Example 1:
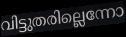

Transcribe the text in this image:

വിട്ടുതരില്ലെന്നോ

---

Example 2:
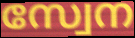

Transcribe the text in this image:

സ്വേന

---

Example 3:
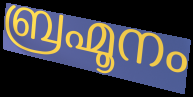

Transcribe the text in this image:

ബ്രഹ്മൂനം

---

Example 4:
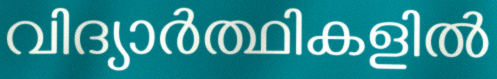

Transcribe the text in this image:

വിദ്യാർത്ഥികളിൽ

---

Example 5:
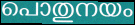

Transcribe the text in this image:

പൊതുനയം